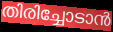
തിരിച്ചോടാൻ